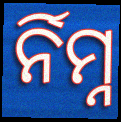
ର୍ନିମ୍ନ